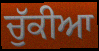
ਚੁੱਕੀਆ